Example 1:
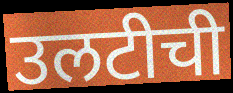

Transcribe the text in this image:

उलटीची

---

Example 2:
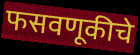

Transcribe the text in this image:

फसवणूकीचे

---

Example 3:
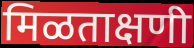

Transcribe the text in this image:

मिळताक्षणी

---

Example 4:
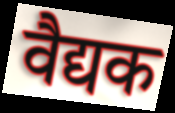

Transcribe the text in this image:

वैद्यक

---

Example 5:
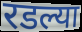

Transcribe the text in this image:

रडल्या